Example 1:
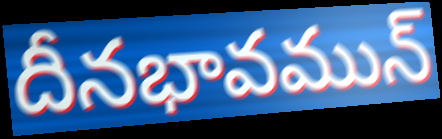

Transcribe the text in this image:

దీనభావమున్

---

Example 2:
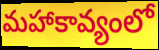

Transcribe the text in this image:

మహాకావ్యంలో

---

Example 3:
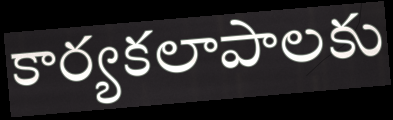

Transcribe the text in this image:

కార్యకలాపాలకు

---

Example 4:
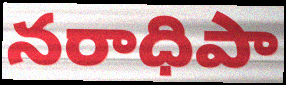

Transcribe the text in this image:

నరాధిపా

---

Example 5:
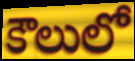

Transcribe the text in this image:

కౌలులో